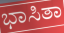
ಭಾಸಿತಾ